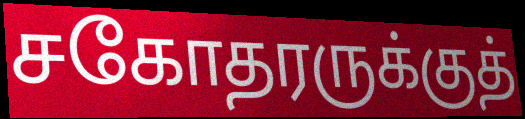
சகோதரருக்குத்